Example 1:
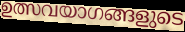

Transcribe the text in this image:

ഉത്സവയാഗങ്ങളുടെ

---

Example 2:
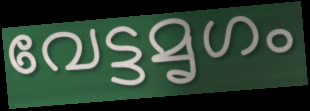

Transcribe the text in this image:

വേട്ടമൃഗം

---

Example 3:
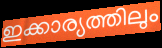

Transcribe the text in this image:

ഇക്കാര്യത്തിലും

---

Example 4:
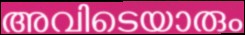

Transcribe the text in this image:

അവിടെയാരും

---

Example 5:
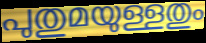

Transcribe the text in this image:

പുതുമയുള്ളതും